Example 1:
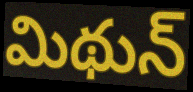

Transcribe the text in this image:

మిథున్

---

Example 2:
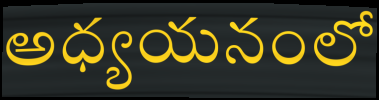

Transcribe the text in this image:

అధ్యయనంలో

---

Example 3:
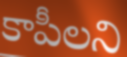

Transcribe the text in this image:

కాపీలని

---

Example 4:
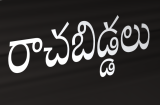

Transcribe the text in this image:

రాచబిడ్డలు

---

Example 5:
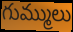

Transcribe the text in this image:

గుమ్ములు